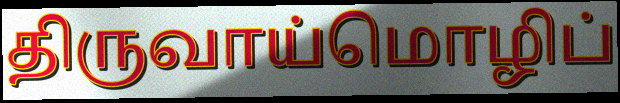
திருவாய்மொழிப்